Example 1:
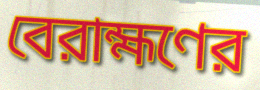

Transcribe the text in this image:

বেরাহ্মণের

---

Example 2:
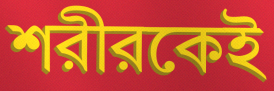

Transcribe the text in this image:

শরীরকেই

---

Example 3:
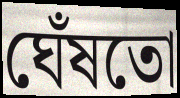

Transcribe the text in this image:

ঘেঁষতো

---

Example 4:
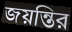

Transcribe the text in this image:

জয়ন্তির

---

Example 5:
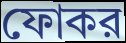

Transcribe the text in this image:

ফোকর